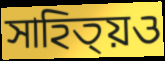
সাহিত্য়ও